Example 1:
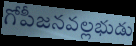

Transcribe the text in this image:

గోపీజనవల్లభుడు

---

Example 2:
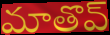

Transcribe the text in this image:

మాతొవ్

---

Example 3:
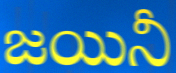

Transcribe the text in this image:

జయినీ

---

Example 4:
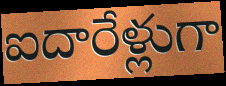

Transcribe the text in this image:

ఐదారేళ్లుగా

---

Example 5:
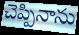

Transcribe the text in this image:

చెప్పినాను